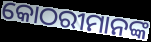
କୋଠରୀମାନଙ୍କ